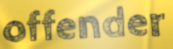
offender